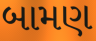
બામણ